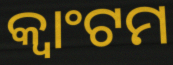
କ୍ୱାଂଟମ